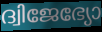
ദ്വിജേഭ്യോ